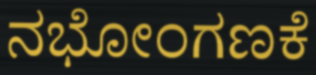
ನಭೋಂಗಣಕೆ